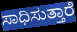
ಸಾಧಿಸುತ್ತಾರೆ